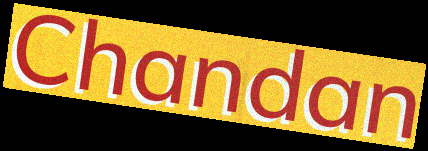
Chandan